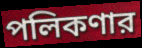
পলিকণার